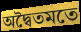
অদ্বৈতমতে